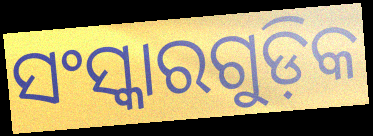
ସଂସ୍କାରଗୁଡ଼ିକ